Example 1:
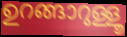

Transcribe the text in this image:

ഉറങ്ങാറുള്ളൂ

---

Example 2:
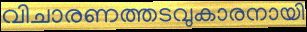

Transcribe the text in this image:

വിചാരണത്തടവുകാരനായി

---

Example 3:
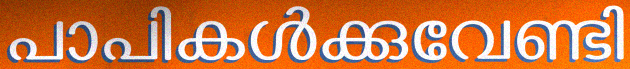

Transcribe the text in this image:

പാപികൾക്കുവേണ്ടി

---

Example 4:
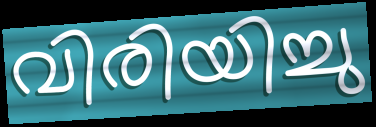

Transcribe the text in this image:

വിരിയിച്ചു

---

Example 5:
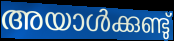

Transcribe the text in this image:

അയാൾക്കുണ്ടു്